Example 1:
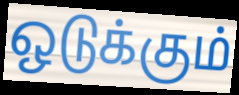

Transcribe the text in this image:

ஒடுக்கும்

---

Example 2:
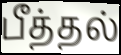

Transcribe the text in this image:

பீத்தல்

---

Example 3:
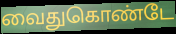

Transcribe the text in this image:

வைதுகொண்டே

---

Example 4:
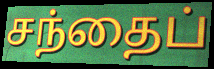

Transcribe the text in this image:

சந்தைப்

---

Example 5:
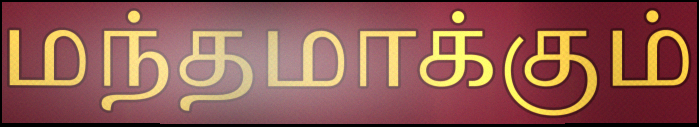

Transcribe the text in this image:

மந்தமாக்கும்